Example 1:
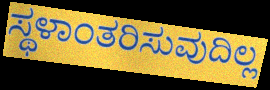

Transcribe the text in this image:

ಸ್ಥಳಾಂತರಿಸುವುದಿಲ್ಲ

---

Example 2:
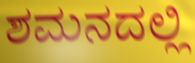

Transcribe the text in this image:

ಶಮನದಲ್ಲಿ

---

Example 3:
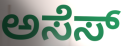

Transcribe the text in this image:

ಅಸೆಸ್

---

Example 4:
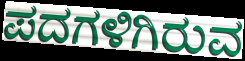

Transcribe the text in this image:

ಪದಗಳಿಗಿರುವ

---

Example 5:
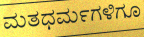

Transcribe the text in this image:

ಮತಧರ್ಮಗಳಿಗೂ